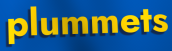
plummets